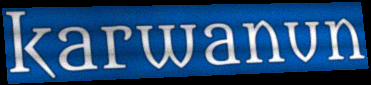
karwanun